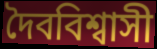
দৈববিশ্বাসী